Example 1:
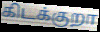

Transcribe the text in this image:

கிடக்குறா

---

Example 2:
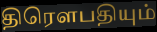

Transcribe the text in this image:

திரெளபதியும்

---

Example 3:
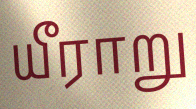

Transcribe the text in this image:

யீராறு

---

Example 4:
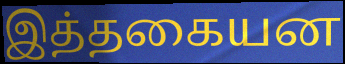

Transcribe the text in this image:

இத்தகையன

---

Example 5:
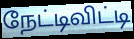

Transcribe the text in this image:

நேட்டிவிட்டி